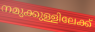
നമുക്കുള്ളിലേക്ക്